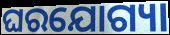
ଘରଯୋଗ୍ୟା